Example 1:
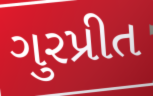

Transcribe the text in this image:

ગુરપ્રીત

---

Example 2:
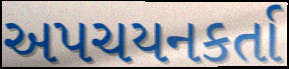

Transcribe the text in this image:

અપચયનકર્તા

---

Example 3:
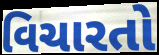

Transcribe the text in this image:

વિચારતો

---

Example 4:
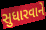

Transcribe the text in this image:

સુધારવાને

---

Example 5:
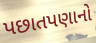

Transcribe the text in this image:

પછાતપણાનો